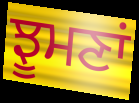
ਝੂਮਣਾਂ